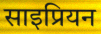
साइप्रियन